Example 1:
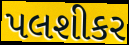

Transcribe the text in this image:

પલશીકર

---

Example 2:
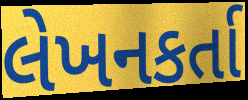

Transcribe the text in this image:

લેખનકર્તા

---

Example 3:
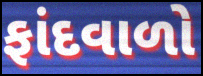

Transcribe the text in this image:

ફાંદવાળો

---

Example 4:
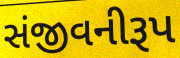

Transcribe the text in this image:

સંજીવનીરૂપ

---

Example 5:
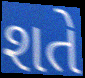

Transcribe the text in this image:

શતે